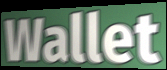
Wallet